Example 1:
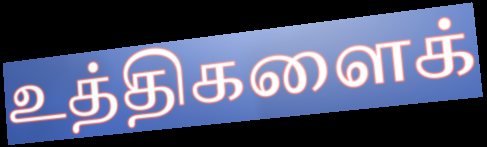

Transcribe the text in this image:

உத்திகளைக்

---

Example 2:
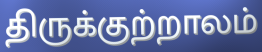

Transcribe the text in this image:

திருக்குற்றாலம்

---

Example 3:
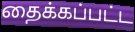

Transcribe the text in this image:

தைக்கப்பட்ட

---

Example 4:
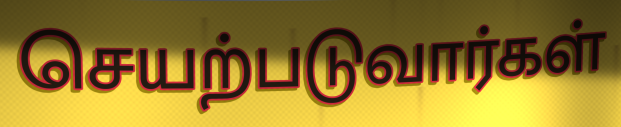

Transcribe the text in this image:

செயற்படுவார்கள்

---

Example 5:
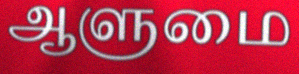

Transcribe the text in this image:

ஆளுமை